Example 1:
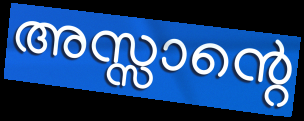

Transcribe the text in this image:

അസ്സാന്റെ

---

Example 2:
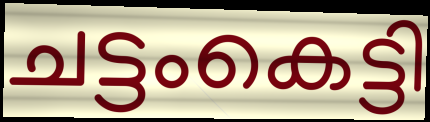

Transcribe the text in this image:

ചട്ടംകെട്ടി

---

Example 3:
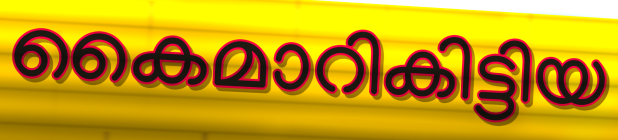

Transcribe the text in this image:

കൈമാറികിട്ടിയ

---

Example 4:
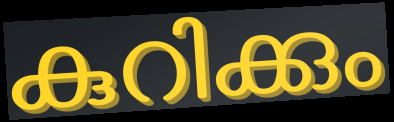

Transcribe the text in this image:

കുറിക്കും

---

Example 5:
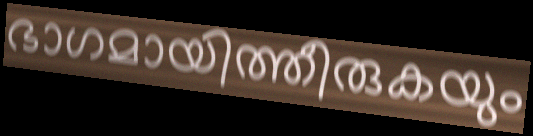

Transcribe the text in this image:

ഭാഗമായിത്തീരുകയും